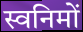
स्वनिमों